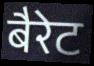
बैरेट